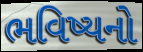
ભવિષ્યનો